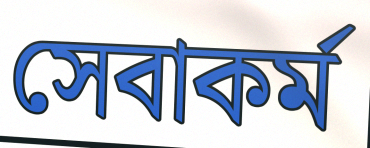
সেবাকর্ম